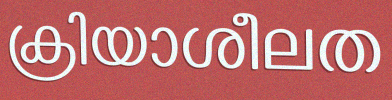
ക്രിയാശീലത